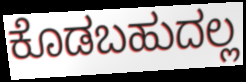
ಕೊಡಬಹುದಲ್ಲ